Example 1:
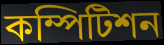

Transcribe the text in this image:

কম্পিটিশন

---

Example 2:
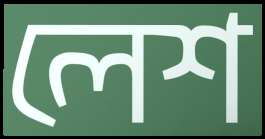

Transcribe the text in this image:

লেশ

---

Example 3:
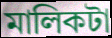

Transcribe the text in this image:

মালিকটা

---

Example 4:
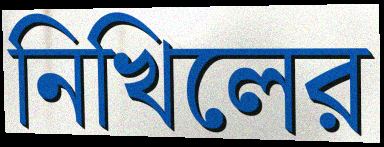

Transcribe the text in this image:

নিখিলের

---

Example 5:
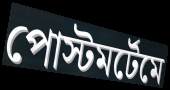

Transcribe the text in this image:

পোস্টমর্টেমে